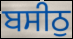
ਬਸੀਠੁ